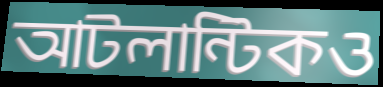
আটলান্টিকও